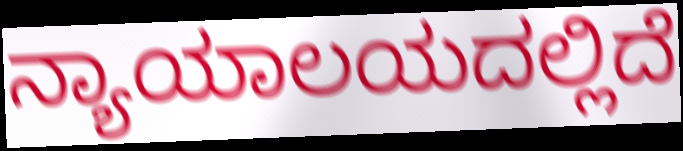
ನ್ಯಾಯಾಲಯದಲ್ಲಿದೆ